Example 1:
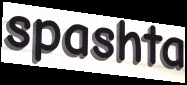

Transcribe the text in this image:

spashta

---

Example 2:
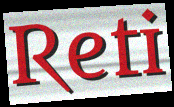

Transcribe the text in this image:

Reti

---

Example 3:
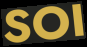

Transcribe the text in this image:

SOI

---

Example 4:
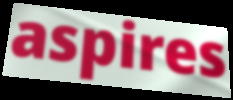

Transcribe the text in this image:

aspires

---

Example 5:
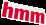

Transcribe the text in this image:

hmm